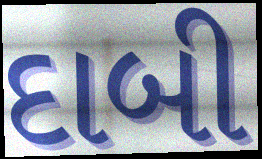
દાબી